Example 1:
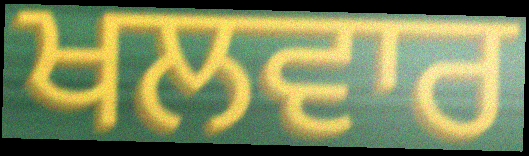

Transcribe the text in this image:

ਖਲਵਾਰ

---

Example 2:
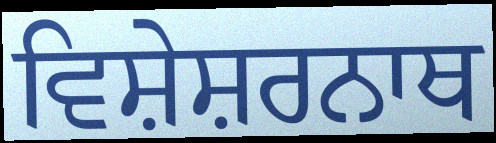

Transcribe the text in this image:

ਵਿਸ਼ੇਸ਼ਰਨਾਥ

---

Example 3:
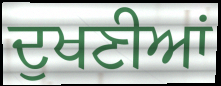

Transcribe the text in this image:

ਦੁਖਣੀਆਂ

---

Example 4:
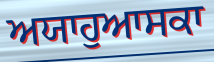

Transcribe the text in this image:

ਅਯਾਹੁਆਸਕਾ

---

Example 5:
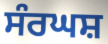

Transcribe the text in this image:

ਸੰਰਘਸ਼